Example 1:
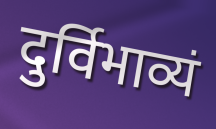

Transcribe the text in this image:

दुर्विभाव्यं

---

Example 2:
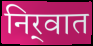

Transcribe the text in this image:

निर्वात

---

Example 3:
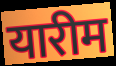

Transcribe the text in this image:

यारीम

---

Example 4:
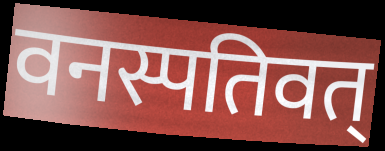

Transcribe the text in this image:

वनस्पतिवत्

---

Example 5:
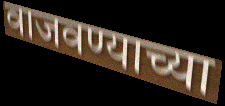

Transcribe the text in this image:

वाजवण्याच्या